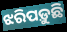
ଝରିପଡ଼ୁଛି